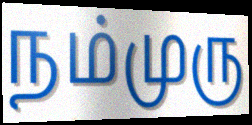
நம்முரு